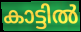
കാട്ടിൽ